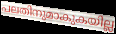
പലതിനുമാകുകയില്ല